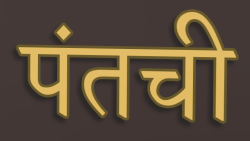
पंतची